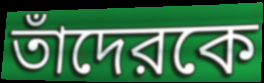
তাঁদেরকে